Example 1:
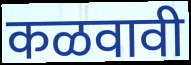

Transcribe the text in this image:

कळवावी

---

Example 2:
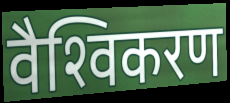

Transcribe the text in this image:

वैश्विकरण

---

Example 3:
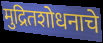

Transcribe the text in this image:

मुद्रितशोधनाचे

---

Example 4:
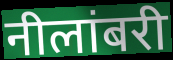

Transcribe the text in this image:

नीलांबरी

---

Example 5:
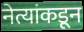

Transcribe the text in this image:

नेत्यांकडून